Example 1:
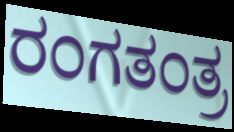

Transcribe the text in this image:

ರಂಗತಂತ್ರ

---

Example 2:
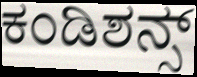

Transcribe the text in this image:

ಕಂಡಿಶನ್ಸ್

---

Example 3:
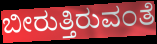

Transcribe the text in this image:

ಬೀರುತ್ತಿರುವಂತೆ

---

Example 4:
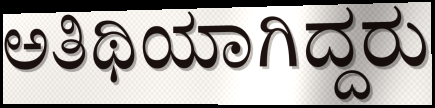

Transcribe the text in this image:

ಅತಿಥಿಯಾಗಿದ್ದರು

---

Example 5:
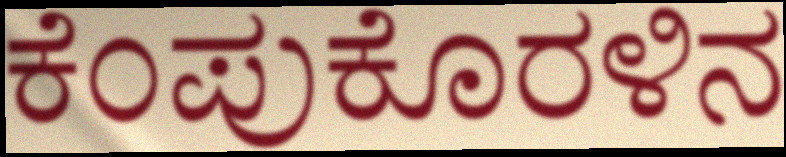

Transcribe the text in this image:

ಕೆಂಪುಕೊರಳಿನ